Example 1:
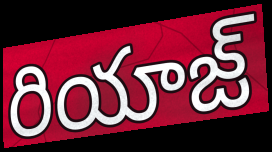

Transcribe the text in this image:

రియాజ్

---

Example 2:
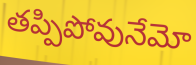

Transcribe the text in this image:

తప్పిపోవునేమో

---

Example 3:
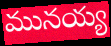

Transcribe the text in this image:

మునయ్య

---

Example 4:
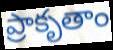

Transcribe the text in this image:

ప్రాకృతాం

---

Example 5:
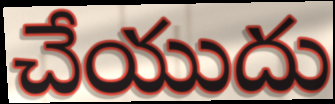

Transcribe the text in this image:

చేయుదు